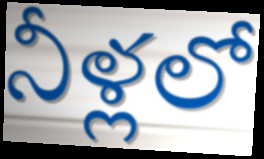
నీళ్లలో